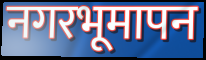
नगरभूमापन